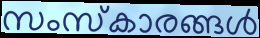
സംസ്കാരങ്ങൾ